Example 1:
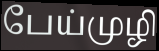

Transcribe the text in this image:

பேய்முழி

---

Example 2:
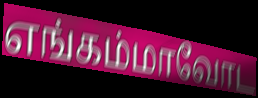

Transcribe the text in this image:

எங்கம்மாவோட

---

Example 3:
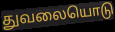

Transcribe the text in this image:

துவலையொடு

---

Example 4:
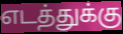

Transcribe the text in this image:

எடத்துக்கு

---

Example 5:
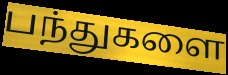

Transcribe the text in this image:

பந்துகளை